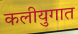
कलीयुगात